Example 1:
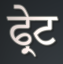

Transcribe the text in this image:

ਫ੍ਰੇਟ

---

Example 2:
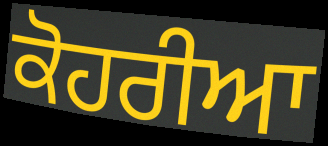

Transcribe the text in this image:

ਕੋਹਰੀਆ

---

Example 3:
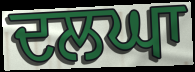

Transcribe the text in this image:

ਦਲਘਾ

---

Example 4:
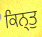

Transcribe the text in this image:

ਕਿਨ੍ਤੁ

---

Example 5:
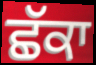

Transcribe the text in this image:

ਛੱਕਾ